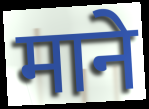
माने